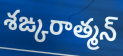
శఙ్కరాత్మన్